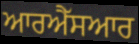
ਆਰਐੱਸਆਰ